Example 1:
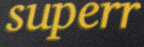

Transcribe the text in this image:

superr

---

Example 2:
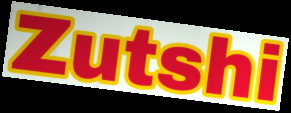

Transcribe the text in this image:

Zutshi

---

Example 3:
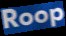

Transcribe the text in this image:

Roop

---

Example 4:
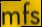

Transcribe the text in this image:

mfs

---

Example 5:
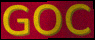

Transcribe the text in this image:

GOC